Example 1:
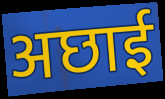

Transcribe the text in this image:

अछाई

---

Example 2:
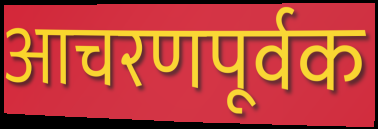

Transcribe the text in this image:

आचरणपूर्वक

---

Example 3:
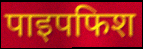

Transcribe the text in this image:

पाइपफिश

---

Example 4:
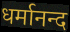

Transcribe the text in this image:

धर्मानन्द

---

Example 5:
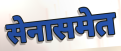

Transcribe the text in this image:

सेनासमेत